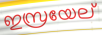
ഇസ്രയേല്